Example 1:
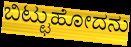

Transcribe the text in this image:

ಬಿಟ್ಟುಹೋದನು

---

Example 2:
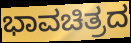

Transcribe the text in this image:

ಭಾವಚಿತ್ರದ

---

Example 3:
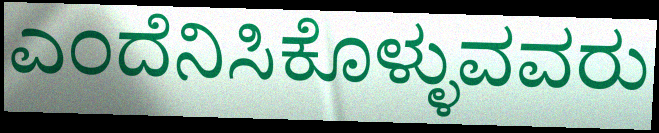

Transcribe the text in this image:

ಎಂದೆನಿಸಿಕೊಳ್ಳುವವರು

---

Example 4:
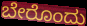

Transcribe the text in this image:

ಬೇರೊಂದು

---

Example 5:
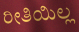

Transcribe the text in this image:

ರೀತಿಯಿಲ್ಲ